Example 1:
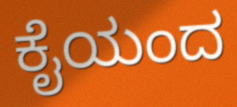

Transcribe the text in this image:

ಕೈಯಂದ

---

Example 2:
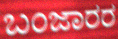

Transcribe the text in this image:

ಬಂಜಾರರ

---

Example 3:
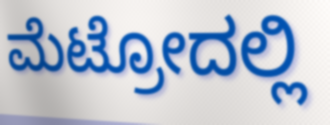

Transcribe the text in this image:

ಮೆಟ್ರೋದಲ್ಲಿ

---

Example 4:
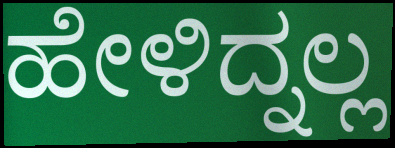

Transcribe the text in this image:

ಹೇಳಿದ್ನಲ್ಲ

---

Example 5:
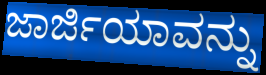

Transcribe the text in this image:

ಜಾರ್ಜಿಯಾವನ್ನು